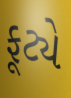
ફૂટ્યે